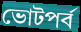
ভোটপর্ব